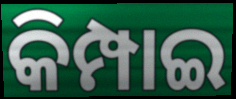
କିମ୍ପାଇ